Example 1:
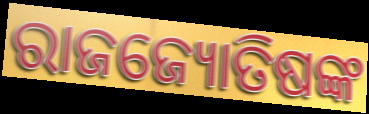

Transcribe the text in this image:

ରାଜଜ୍ୟୋତିଷଙ୍କ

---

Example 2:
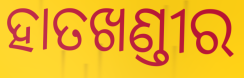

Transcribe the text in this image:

ହାତଖଣ୍ଡୀର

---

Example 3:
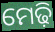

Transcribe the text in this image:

ମେଢ଼ି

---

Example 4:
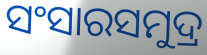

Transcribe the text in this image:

ସଂସାରସମୁଦ୍ର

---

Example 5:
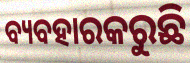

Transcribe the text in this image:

ବ୍ୟବହାରକରୁଛି